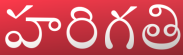
హరిగతి